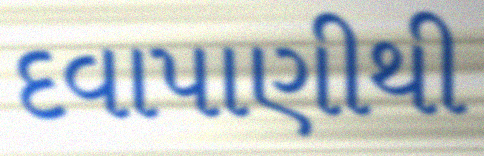
દવાપાણીથી